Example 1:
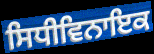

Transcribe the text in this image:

ਸਿਧੀਵਿਨਾਇਕ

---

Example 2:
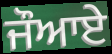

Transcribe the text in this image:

ਜੌਆਏ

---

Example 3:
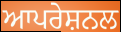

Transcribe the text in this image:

ਆਪਰੇਸ਼ਨਲ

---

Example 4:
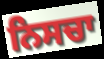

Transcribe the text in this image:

ਨਿਸਚਾ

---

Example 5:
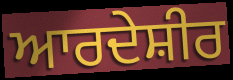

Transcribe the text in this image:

ਆਰਦੇਸ਼ੀਰ